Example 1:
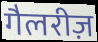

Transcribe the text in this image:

गैलरीज़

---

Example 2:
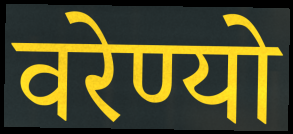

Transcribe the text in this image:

वरेण्यो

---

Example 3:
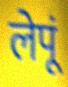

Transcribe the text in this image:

लेपूं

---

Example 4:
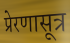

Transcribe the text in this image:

प्रेरणासूत्र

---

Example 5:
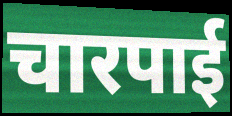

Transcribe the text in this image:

चारपाई